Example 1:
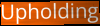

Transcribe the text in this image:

Upholding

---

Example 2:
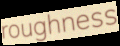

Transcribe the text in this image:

roughness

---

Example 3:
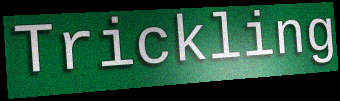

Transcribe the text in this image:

Trickling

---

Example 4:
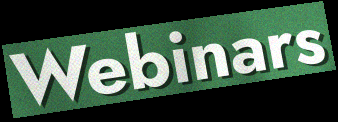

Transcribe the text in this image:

Webinars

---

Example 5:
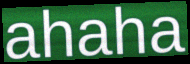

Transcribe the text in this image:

ahaha